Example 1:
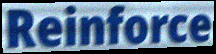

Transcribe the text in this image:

Reinforce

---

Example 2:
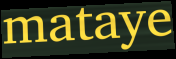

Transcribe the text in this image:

mataye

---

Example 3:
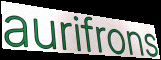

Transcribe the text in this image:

aurifrons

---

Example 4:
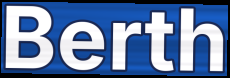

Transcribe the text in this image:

Berth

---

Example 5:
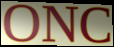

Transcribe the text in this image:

ONC